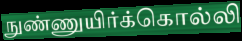
நுண்ணுயிர்க்கொல்லி